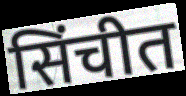
सिंचीत